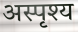
अस्पृश्य